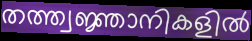
തത്ത്വജ്ഞാനികളിൽ